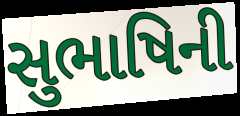
સુભાષિની